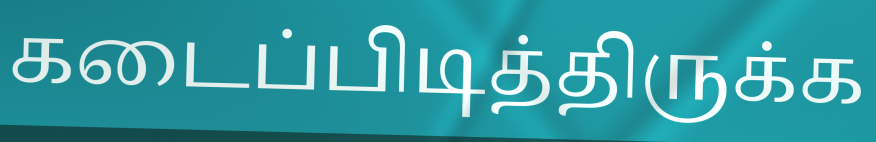
கடைப்பிடித்திருக்க